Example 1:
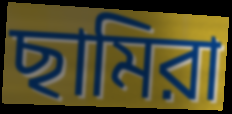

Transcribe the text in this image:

ছামিরা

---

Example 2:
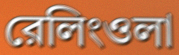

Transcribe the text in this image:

রেলিংওলা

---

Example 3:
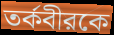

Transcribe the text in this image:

তর্কবীরকে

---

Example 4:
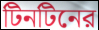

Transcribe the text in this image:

টিনটিনের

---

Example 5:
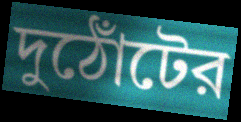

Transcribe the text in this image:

দুঠোঁটের